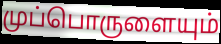
முப்பொருளையும்